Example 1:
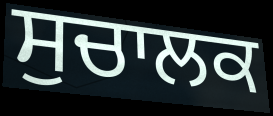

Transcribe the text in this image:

ਸੁਚਾਲਕ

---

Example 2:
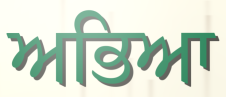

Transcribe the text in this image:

ਅਭਿਆ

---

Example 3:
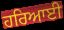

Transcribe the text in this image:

ਹਰਿਆਈ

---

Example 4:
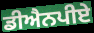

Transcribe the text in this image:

ਡੀਐਨਪੀਏ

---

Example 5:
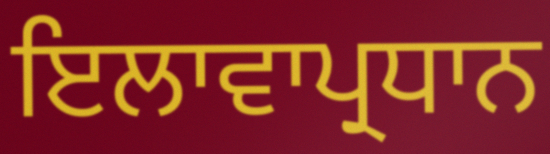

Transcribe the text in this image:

ਇਲਾਵਾਪ੍ਰਧਾਨ